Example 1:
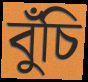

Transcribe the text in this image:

বুঁচি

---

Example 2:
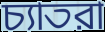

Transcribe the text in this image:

চ্যাতরা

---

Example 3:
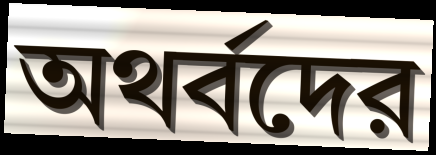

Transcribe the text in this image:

অথর্বদের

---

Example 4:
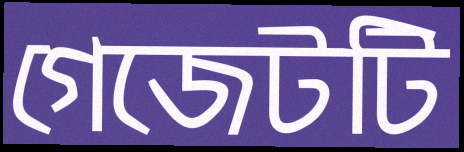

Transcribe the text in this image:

গেজেটটি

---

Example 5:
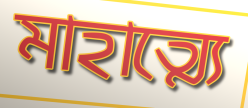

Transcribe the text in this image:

মাহাত্ম্যে